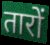
तारों